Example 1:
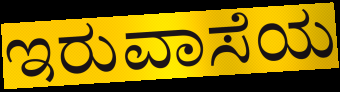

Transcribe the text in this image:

ಇರುವಾಸೆಯ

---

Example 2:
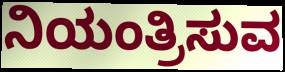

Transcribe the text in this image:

ನಿಯಂತ್ರಿಸುವ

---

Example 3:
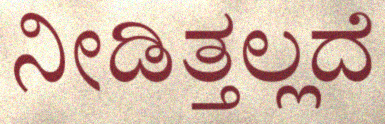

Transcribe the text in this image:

ನೀಡಿತ್ತಲ್ಲದೆ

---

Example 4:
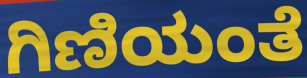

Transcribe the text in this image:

ಗಿಣಿಯಂತೆ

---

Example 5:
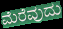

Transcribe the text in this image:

ಮೆರೆವುದು